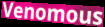
Venomous